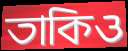
তাকিও